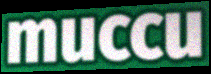
muccu